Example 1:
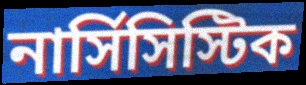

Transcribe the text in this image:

নার্সিসিস্টিক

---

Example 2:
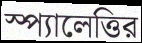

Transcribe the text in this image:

স্প্যালেত্তির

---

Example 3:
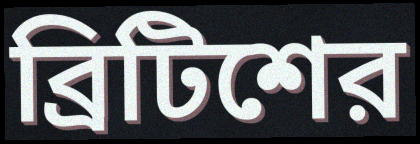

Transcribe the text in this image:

ব্রিটিশের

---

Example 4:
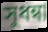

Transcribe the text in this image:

সুধন্বা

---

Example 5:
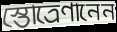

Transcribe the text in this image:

স্তোত্রেণানেন